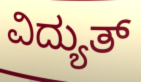
ವಿದ್ಯುತ್